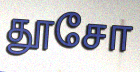
தூசோ